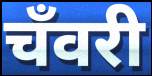
चँवरी